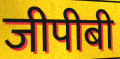
जीपीबी